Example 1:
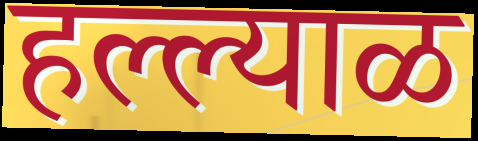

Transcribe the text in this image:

हल्ल्याळ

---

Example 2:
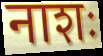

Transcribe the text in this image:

नाशः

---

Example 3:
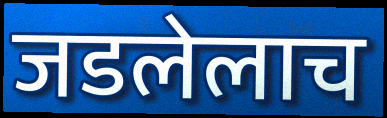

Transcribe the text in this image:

जडलेलाच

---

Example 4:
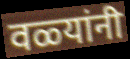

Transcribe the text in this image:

वळ्यांनी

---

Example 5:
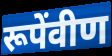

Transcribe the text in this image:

रूपेंवीण